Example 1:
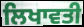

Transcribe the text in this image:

ਲਿਖਾਵਤੀ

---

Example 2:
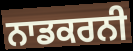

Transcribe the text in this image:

ਨਾਡਕਰਨੀ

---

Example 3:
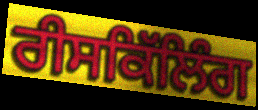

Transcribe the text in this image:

ਰੀਸਕਿੱਲਿੰਗ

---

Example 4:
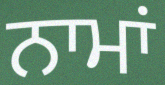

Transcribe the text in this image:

ਨਾਮਾਂ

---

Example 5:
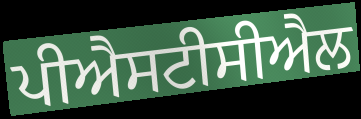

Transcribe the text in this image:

ਪੀਐਸਟੀਸੀਐਲ